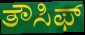
ತೌಸಿಫ್